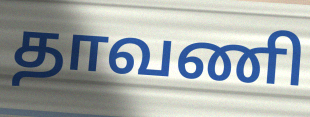
தாவணி